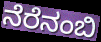
ನೆರೆನಂಬಿ